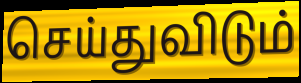
செய்துவிடும்